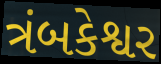
ત્રંબકેશ્વર